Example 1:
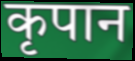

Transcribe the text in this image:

कृपान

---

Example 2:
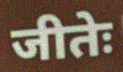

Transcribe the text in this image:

जीतेः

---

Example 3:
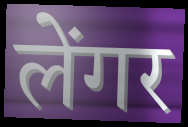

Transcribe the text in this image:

लेंगर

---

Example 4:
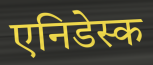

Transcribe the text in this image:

एनिडेस्क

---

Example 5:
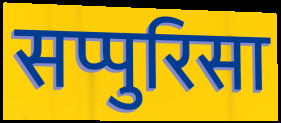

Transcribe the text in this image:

सप्पुरिसा